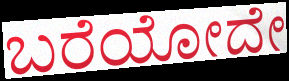
ಬರೆಯೋದೇ